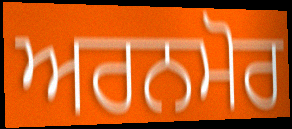
ਅਰਨਮੋਰ